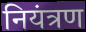
नियंत्रण